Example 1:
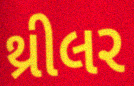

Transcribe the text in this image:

થ્રીલર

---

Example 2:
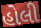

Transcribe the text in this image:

હોલી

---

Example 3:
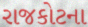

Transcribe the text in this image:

રાજકોટના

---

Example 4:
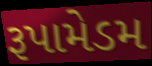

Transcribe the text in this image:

રૂપામેડમ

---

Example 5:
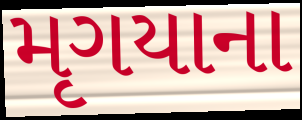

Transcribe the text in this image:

મૃગયાના